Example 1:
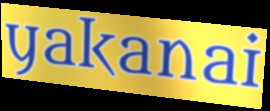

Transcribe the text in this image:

yakanai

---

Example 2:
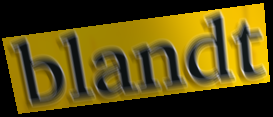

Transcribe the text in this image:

blandt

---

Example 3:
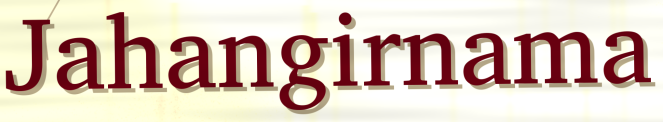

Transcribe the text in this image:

Jahangirnama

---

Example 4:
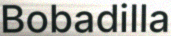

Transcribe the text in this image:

Bobadilla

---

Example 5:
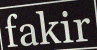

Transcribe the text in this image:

fakir